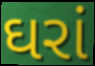
ઘરાં